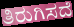
ತಿರುಗಿಸದೆ